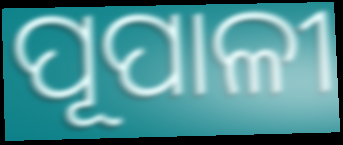
ପୂପାଳୀ